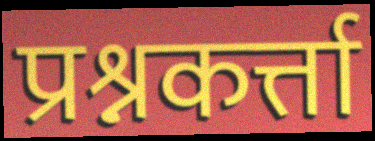
प्रश्नकर्त्ता